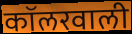
कॉलरवाली